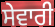
ਸੇਵਾਰੀ